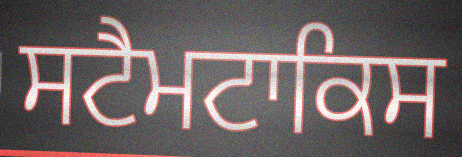
ਸਟੈਮਟਾਕਿਸ